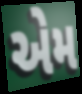
એેમ